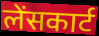
लेंसकार्ट